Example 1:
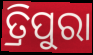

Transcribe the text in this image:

ତ୍ରିପୁରା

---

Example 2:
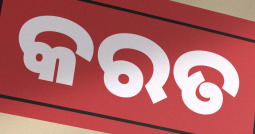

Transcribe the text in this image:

କରତ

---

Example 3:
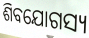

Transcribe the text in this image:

ଶିବଯୋଗସ୍ୟ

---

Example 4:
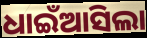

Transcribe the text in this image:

ଧାଇଁଆସିଲା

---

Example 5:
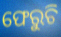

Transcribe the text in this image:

ଫେରୁଚି